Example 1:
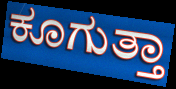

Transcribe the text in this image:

ಕೂಗುತ್ತಾ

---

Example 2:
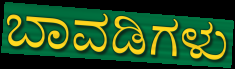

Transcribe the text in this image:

ಬಾವಡಿಗಳು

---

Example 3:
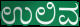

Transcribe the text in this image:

ಉಲಿವ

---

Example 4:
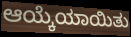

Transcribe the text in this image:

ಆಯ್ಕೆಯಾಯಿತು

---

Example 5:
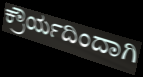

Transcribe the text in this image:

ಕ್ರೌರ್ಯದಿಂದಾಗಿ